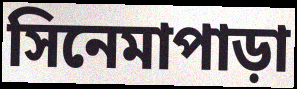
সিনেমাপাড়া